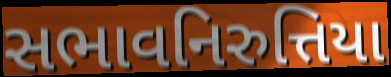
સભાવનિરુત્તિયા